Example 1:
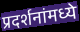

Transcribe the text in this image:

प्रदर्शनांमध्ये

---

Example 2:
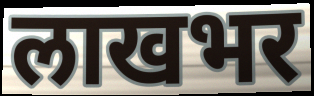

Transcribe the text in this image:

लाखभर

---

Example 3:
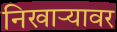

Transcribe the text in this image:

निखार्‍यावर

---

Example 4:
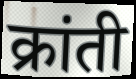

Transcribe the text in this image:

क्रांती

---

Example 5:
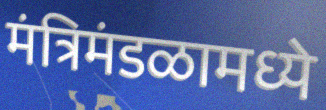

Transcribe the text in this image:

मंत्रिमंडळामध्ये